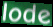
lode